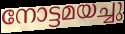
നോട്ടമയച്ചു